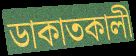
ডাকাতকালী